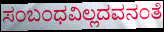
ಸಂಬಂಧವಿಲ್ಲದವನಂತೆ